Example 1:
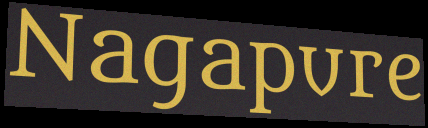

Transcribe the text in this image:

Nagapure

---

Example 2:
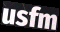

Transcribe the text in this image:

usfm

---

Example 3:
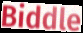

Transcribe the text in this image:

Biddle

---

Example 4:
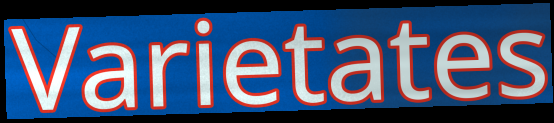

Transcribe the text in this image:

Varietates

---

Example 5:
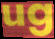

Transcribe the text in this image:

ug